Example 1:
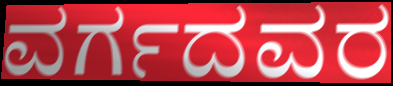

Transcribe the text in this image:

ವರ್ಗದವರ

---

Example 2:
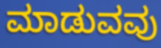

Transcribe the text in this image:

ಮಾಡುವವು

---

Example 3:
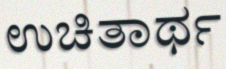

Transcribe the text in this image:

ಉಚಿತಾರ್ಥ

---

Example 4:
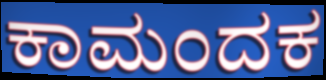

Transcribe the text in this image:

ಕಾಮಂದಕ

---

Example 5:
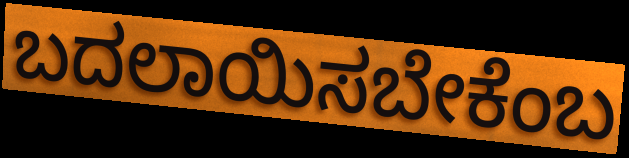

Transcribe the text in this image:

ಬದಲಾಯಿಸಬೇಕೆಂಬ